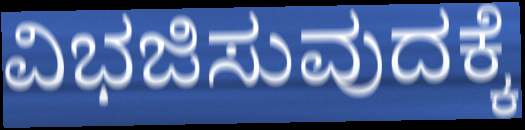
ವಿಭಜಿಸುವುದಕ್ಕೆ